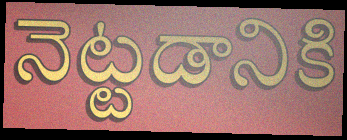
నెట్టడానికి